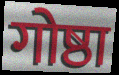
गोष्ठा